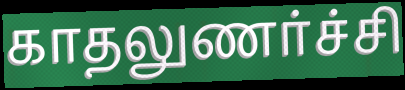
காதலுணர்ச்சி